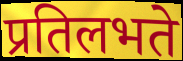
प्रतिलभते